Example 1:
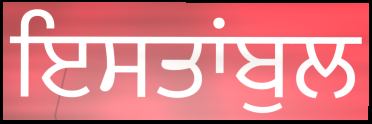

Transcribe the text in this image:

ਇਸਤਾਂਬੁਲ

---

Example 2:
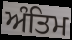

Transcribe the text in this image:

ਅੰਤਿਮ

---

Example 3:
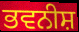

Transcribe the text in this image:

ਭਵਨੀਸ਼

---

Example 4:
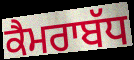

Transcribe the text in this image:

ਕੈਮਰਾਬੱਧ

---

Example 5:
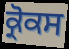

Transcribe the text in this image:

ਕ੍ਰੋਕਸ